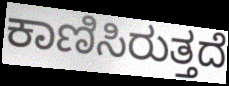
ಕಾಣಿಸಿರುತ್ತದೆ